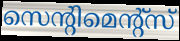
സെന്റിമെന്റ്സ്